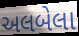
અલબેલા